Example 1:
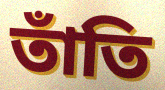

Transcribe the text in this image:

তাঁতি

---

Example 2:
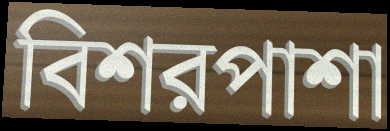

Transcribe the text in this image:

বিশরপাশা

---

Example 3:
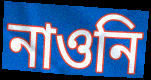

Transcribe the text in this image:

নাওনি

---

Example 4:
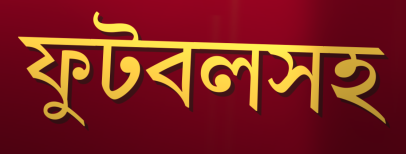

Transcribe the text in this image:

ফুটবলসহ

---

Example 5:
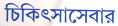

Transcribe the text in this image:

চিকিৎসাসেবার